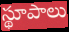
స్థూపాలు